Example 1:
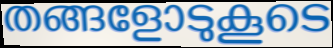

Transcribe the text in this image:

തങ്ങളോടുകൂടെ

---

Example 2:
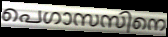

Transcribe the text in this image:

പെഗാസസിനെ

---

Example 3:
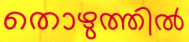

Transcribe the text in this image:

തൊഴുത്തിൽ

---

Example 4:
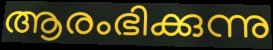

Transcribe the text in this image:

ആരംഭിക്കുന്നു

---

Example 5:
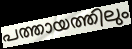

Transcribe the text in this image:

പത്തായത്തിലും